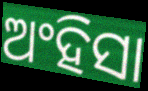
ଅଂହିସା